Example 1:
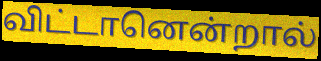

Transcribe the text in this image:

விட்டானென்றால்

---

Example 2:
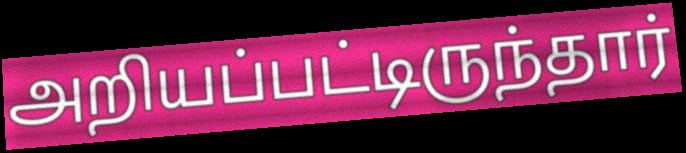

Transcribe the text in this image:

அறியப்பட்டிருந்தார்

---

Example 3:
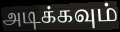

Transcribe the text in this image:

அடிக்கவும்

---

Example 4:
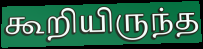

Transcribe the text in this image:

கூறியிருந்த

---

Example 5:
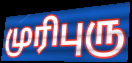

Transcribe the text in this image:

முரிபுரு